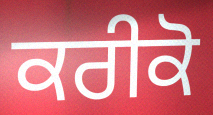
ਕਰੀਕੋ